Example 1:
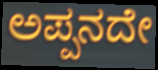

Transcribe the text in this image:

ಅಪ್ಪನದೇ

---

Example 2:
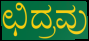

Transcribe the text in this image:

ಛಿದ್ರವು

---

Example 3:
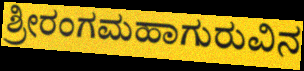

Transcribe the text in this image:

ಶ್ರೀರಂಗಮಹಾಗುರುವಿನ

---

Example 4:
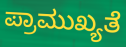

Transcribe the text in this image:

ಪ್ರಾಮುಖ್ಯತೆ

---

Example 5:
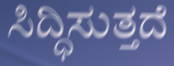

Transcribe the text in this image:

ಸಿದ್ಧಿಸುತ್ತದೆ